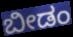
ಬೀಡಂ